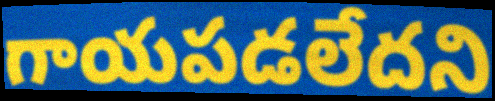
గాయపడలేదని